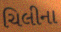
ચિલીના